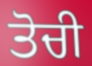
ਤੋਚੀ